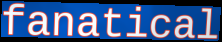
fanatical